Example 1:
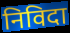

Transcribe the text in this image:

निविदा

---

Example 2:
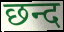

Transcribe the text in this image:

छन्‍द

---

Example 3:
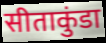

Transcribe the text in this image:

सीताकुंडा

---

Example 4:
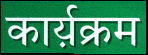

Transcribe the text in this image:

कार्य़क्रम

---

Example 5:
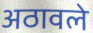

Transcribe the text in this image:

अठावले